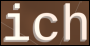
ich